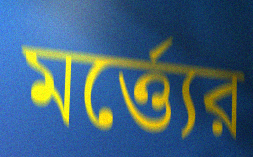
মর্ত্ত্যের